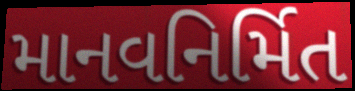
માનવનિર્મિત